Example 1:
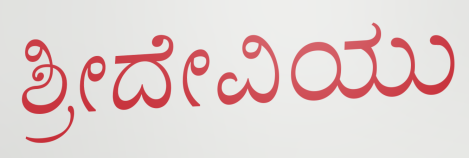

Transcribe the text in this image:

ಶ್ರೀದೇವಿಯು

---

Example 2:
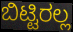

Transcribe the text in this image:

ಬಿಟ್ಟಿರಲ್ಲ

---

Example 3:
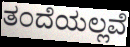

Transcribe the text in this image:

ತಂದೆಯಲ್ಲವೆ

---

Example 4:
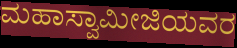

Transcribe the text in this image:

ಮಹಾಸ್ವಾಮೀಜಿಯವರ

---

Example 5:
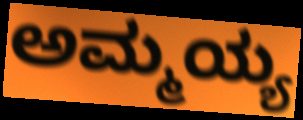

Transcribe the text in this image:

ಅಮ್ಮಯ್ಯ